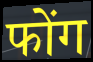
फोंग